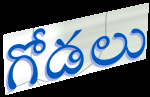
గోడలు